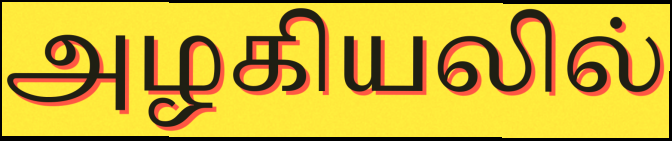
அழகியலில்